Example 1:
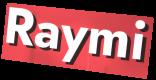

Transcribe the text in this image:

Raymi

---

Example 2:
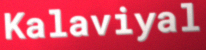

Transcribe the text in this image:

Kalaviyal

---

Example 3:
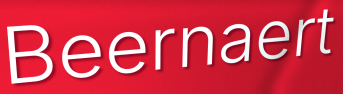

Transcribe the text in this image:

Beernaert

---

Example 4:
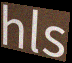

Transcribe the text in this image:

hls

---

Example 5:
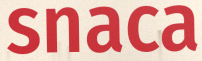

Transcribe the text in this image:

snaca